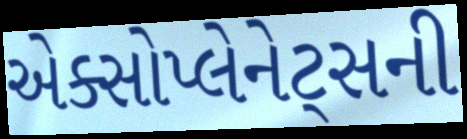
એક્સોપ્લેનેટ્સની